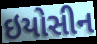
ઇયોસીન